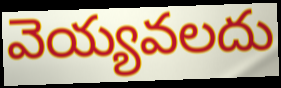
వెయ్యవలదు